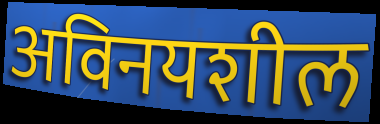
अविनयशील